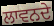
ਲਾਵਨਦੇ